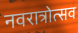
नवरात्रोत्सव